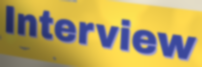
Interview